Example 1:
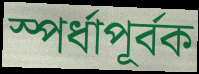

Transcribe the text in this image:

স্পর্ধাপূর্বক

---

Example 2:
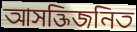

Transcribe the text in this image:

আসক্তিজনিত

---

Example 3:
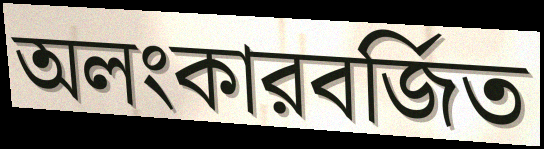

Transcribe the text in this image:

অলংকারবর্জিত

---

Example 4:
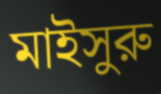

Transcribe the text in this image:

মাইসুরু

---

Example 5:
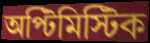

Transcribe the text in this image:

অপ্টিমিস্টিক